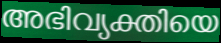
അഭിവ്യക്തിയെ